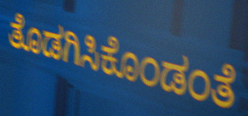
ತೊಡಗಿಸಿಕೊಂಡಂತೆ